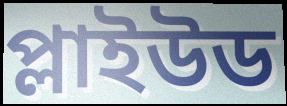
প্লাইউড